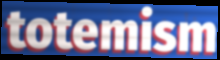
totemism